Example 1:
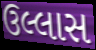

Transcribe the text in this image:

ઉલ્લાસ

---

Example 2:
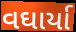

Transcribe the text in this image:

વઘાર્યા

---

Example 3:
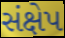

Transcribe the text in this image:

સંક્ષેપ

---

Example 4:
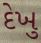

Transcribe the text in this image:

દેખુ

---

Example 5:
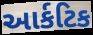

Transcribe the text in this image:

આર્કટિક